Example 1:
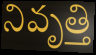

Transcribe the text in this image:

నివృత్తి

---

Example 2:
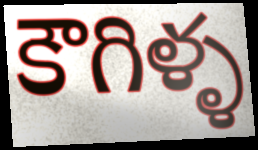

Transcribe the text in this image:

కౌగిళ్ళ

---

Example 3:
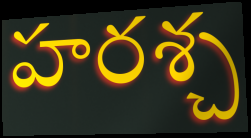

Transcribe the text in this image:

హరశ్చ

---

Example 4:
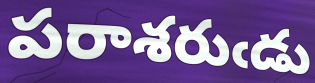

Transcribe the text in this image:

పరాశరుఁడు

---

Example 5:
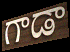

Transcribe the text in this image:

గాడా